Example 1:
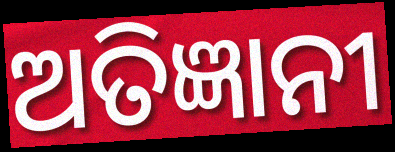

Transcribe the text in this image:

ଅତିଜ୍ଞାନୀ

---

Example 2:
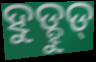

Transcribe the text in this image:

ହୁଡ୍ହୁଡ୍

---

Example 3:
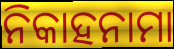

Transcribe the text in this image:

ନିକାହନାମା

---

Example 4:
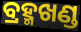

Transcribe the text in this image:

ବ୍ରହ୍ମଖଣ୍ଡ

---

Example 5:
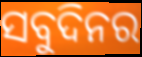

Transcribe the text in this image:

ସବୁଦିନର